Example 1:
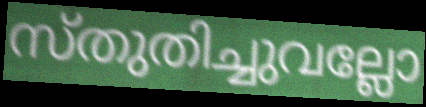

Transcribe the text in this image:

സ്തുതിച്ചുവല്ലോ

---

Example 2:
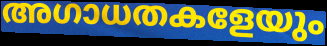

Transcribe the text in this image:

അഗാധതകളേയും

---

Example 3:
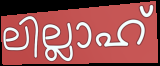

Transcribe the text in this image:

ലില്ലാഹ്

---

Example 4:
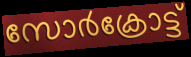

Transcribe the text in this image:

സോർക്രോട്ട്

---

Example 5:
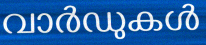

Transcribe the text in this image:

വാർഡുകൾ